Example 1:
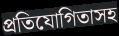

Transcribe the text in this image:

প্রতিযোগিতাসহ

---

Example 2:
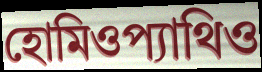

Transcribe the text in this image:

হোমিওপ্যাথিও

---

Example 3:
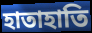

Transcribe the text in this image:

হাতাহাতি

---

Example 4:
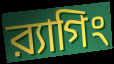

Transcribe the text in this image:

র‍্যাগিং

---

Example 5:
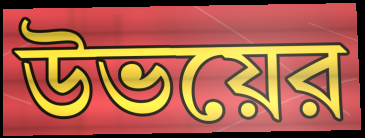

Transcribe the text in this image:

উভয়ের